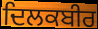
ਦਿਲਕਬੀਰ